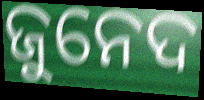
ଜୁନେଦ